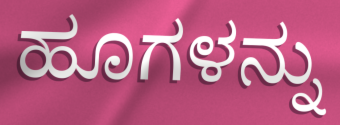
ಹೂಗಳನ್ನು